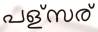
പള്സര്